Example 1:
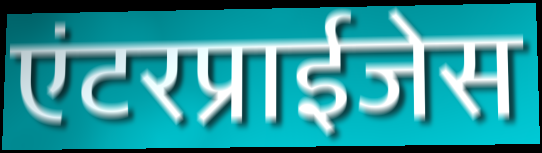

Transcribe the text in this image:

एंटरप्राईजेस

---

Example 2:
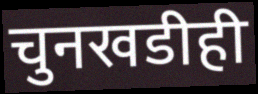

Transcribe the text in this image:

चुनखडीही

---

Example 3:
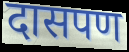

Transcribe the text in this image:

दासपण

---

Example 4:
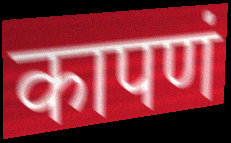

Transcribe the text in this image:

कापणं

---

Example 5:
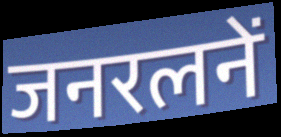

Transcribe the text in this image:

जनरलनें